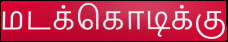
மடக்கொடிக்கு